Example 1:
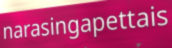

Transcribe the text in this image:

narasingapettais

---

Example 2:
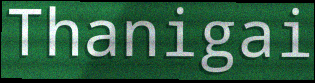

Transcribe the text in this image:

Thanigai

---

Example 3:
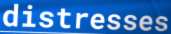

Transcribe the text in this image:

distresses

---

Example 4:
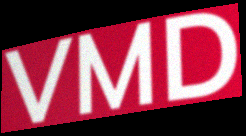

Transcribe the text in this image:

VMD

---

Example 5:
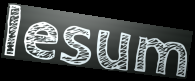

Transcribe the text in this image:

Iesum